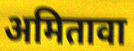
अमितावा